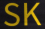
SK